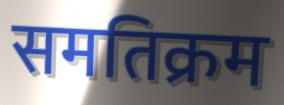
समतिक्रम